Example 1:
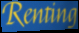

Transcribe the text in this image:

Renting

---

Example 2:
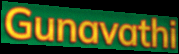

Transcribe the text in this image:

Gunavathi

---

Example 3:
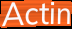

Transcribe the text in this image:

Actin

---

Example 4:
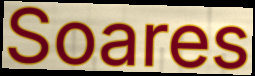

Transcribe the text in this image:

Soares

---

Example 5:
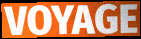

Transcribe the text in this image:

VOYAGE